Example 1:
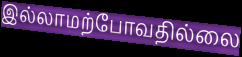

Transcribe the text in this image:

இல்லாமற்போவதில்லை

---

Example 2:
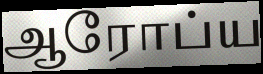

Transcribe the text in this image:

ஆரோப்ய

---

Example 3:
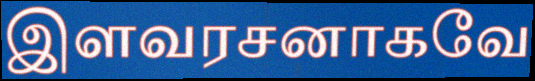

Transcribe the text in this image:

இளவரசனாகவே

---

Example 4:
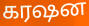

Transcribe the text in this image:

கரஷன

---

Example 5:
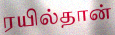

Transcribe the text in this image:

ரயில்தான்